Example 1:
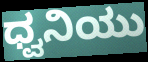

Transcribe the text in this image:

ಧ್ವನಿಯು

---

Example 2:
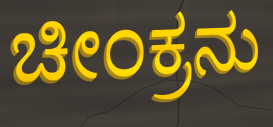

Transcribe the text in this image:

ಚೀಂಕ್ರನು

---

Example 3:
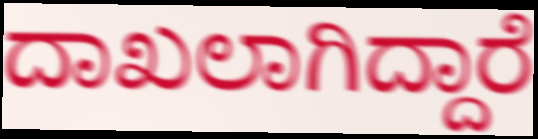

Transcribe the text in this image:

ದಾಖಲಾಗಿದ್ದಾರೆ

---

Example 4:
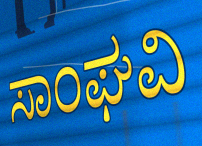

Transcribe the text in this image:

ಸಾಂಘವಿ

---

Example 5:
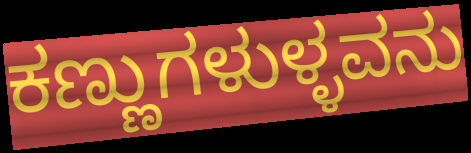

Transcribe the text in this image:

ಕಣ್ಣುಗಳುಳ್ಳವನು